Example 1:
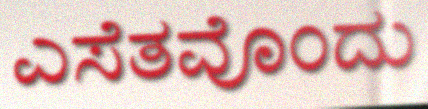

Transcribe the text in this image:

ಎಸೆತವೊಂದು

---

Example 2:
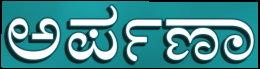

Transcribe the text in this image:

ಅರ್ಪಣಾ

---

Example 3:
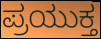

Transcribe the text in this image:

ಪ್ರಯುಕ್ತ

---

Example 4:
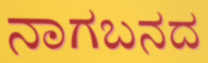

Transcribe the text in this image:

ನಾಗಬನದ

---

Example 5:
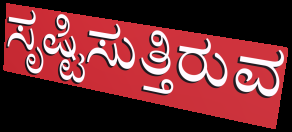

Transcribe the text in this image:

ಸೃಷ್ಟಿಸುತ್ತಿರುವ